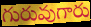
గురువుగారు